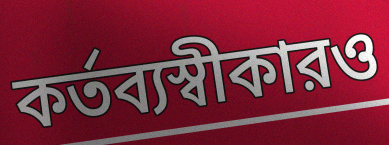
কর্তব্যস্বীকারও